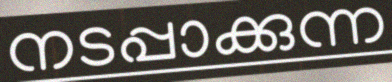
നടപ്പാക്കുന്ന